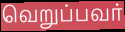
வெறுப்பவர்